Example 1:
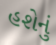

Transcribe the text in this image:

હશેનું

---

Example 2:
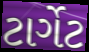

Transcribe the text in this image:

ટાર્ગેટ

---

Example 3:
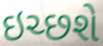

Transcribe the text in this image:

ઇચ્છશે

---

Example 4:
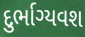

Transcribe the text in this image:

દુર્ભાગ્યવશ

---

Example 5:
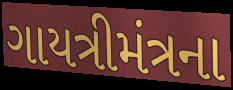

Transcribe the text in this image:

ગાયત્રીમંત્રના